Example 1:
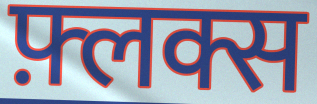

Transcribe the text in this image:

फ़्लक्स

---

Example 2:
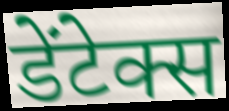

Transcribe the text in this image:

डेंटेक्स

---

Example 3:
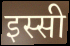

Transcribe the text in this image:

इस्सी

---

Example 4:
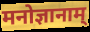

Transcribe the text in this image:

मनोज्ञानाम्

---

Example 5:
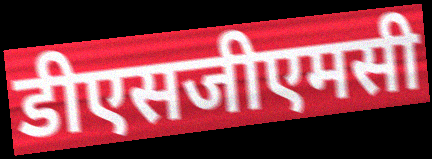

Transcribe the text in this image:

डीएसजीएमसी